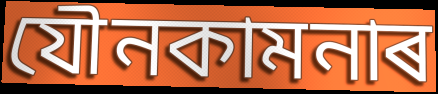
যৌনকামনাৰ